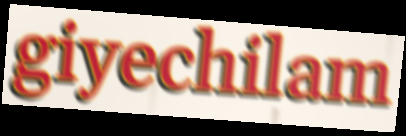
giyechilam